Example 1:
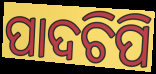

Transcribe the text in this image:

ପାଦଚିପି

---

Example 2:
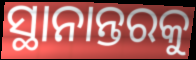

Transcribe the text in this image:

ସ୍ଥାନାନ୍ତରକୁ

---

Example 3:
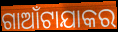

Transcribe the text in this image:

ଗାଆଁଟାଯାକର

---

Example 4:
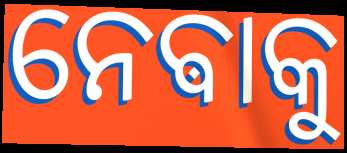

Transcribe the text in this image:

ନେଵାକୁ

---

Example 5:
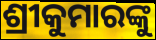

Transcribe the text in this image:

ଶ୍ରୀକୁମାରଙ୍କୁ